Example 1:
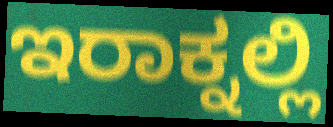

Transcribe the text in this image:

ಇರಾಕ್ನಲ್ಲಿ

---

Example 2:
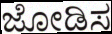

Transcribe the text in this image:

ಜೋಡಿಸ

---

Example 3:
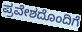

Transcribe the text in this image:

ಪ್ರವೇಶದೊಂದಿಗೆ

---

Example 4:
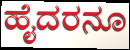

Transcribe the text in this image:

ಹೈದರನೂ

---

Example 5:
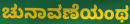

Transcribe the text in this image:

ಚುನಾವಣೆಯಂಥ